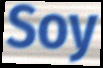
Soy